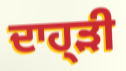
ਦਾਹ੍ੜੀ